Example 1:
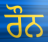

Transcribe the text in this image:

ਰੌਨ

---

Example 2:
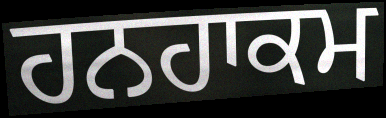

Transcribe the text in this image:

ਹਨਹਾਕਮ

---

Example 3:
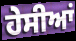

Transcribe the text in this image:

ਹੇਸੀਆਂ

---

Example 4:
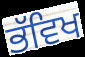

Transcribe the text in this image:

ਭੱਵਿਖ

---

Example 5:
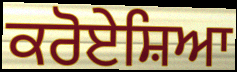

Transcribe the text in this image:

ਕਰੋਏਸ਼ਿਆ